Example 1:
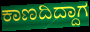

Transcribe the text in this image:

ಕಾಣದಿದ್ದಾಗ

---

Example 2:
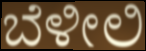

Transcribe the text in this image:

ಬೆಳೀಲಿ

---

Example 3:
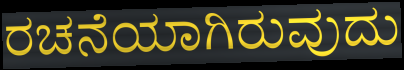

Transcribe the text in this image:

ರಚನೆಯಾಗಿರುವುದು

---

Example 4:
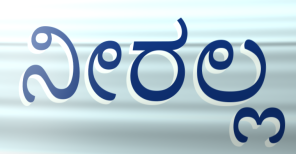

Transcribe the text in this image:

ನೀರಲ್ಲ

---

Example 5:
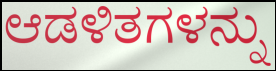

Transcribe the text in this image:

ಆಡಳಿತಗಳನ್ನು